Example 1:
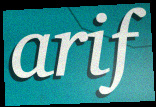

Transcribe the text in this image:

arif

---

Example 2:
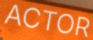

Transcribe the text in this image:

ACTOR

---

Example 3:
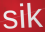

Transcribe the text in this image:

sik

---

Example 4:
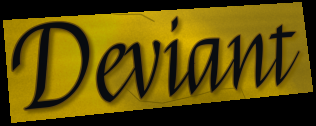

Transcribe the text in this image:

Deviant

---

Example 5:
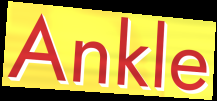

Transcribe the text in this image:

Ankle